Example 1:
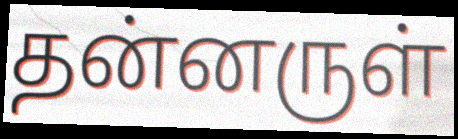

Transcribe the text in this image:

தன்னருள்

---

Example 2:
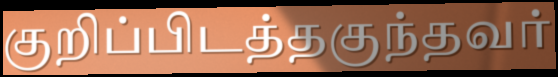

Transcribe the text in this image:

குறிப்பிடத்தகுந்தவர்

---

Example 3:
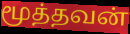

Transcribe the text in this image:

மூத்தவன்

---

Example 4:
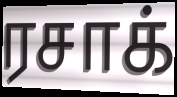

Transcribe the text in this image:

ரசாக்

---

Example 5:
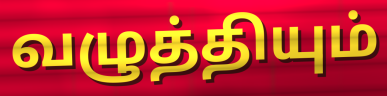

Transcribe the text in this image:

வழுத்தியும்